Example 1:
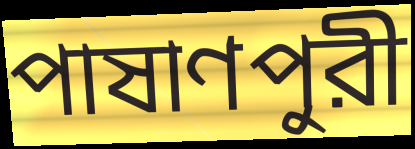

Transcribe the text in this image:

পাষাণপুরী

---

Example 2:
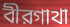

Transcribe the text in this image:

বীরগাথা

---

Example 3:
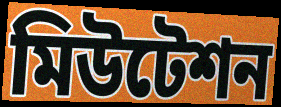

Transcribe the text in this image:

মিউটেশন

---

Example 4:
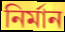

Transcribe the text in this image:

নির্মান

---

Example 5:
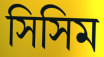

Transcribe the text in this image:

সিসিম